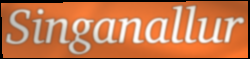
Singanallur